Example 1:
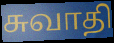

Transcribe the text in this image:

சுவாதி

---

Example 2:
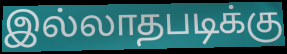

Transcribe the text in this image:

இல்லாதபடிக்கு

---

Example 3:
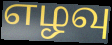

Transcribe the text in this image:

எழவு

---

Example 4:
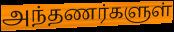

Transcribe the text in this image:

அந்தணர்களுள்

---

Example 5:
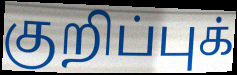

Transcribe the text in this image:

குறிப்புக்